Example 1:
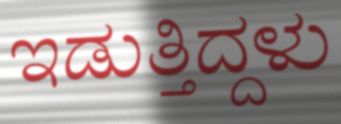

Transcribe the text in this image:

ಇಡುತ್ತಿದ್ದಳು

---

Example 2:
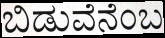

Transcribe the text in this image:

ಬಿಡುವೆನೆಂಬ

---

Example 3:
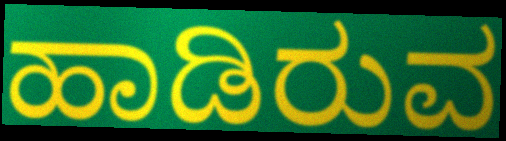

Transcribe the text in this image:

ಹಾಡಿರುವ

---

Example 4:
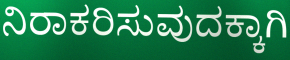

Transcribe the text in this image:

ನಿರಾಕರಿಸುವುದಕ್ಕಾಗಿ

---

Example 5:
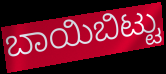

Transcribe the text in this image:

ಬಾಯಿಬಿಟ್ಟು